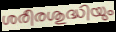
ശരീരശുദ്ധിയും